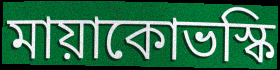
মায়াকোভস্কি